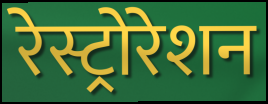
रेस्ट्रोरेशन